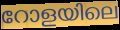
റോളയിലെ